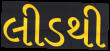
લીડથી